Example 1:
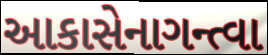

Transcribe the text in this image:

આકાસેનાગન્ત્વા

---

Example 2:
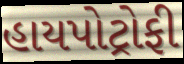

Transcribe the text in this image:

હાયપોટ્રોફી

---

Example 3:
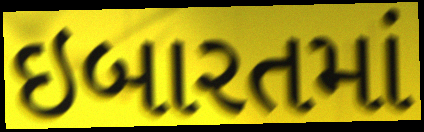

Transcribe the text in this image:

ઇબારતમાં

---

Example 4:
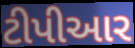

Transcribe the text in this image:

ટીપીઆર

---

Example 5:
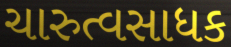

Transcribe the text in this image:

ચારુત્વસાધક